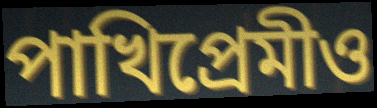
পাখিপ্রেমীও